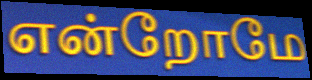
என்றோமே